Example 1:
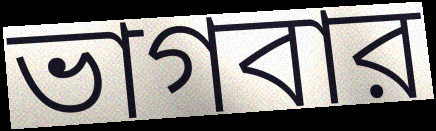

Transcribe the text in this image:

ভাগবার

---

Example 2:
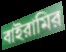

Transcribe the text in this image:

বাইরামির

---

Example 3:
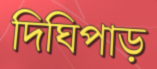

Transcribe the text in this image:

দিঘিপাড়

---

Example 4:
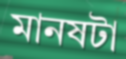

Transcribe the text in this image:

মানষটা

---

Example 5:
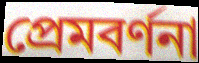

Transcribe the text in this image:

প্রেমবর্ণনা